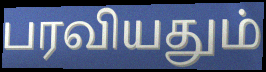
பரவியதும்